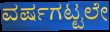
ವರ್ಷಗಟ್ಟಲೇ